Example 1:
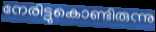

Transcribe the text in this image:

നേരിട്ടുകൊണ്ടിരുന്നു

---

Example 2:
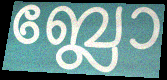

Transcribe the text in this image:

ബ്ലോ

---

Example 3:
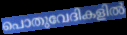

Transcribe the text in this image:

പൊതുവേദികളിൽ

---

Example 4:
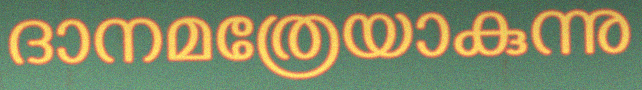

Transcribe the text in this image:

ദാനമത്രേയാകുന്നു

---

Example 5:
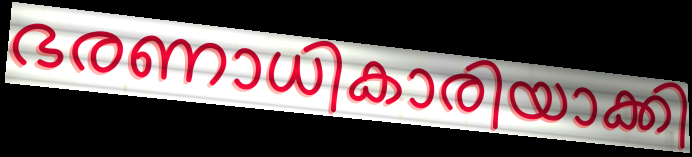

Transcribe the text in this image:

ഭരണാധികാരിയാക്കി